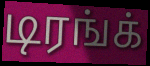
டிரங்க்